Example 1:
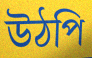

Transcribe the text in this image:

উঠপি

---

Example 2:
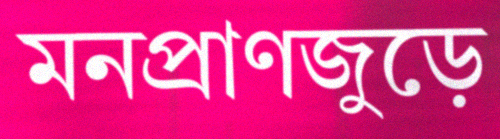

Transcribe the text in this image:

মনপ্রাণজুড়ে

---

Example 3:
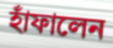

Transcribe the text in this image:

হাঁফালেন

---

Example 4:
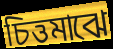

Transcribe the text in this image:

চিত্তমাঝে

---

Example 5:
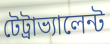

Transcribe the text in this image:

টেট্রাভ্যালেন্ট